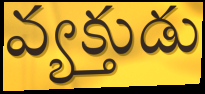
వ్యక్తుడు